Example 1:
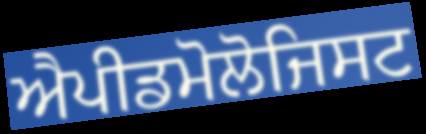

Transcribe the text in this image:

ਐਪੀਡਮੋਲੋਜਿਸਟ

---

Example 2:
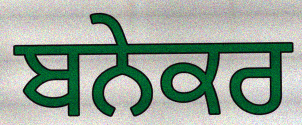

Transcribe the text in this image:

ਬਨੇਕਰ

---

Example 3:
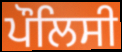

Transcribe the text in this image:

ਪੌਲਿਸੀ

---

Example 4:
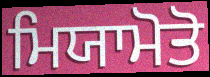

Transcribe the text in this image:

ਮਿਯਾਮੋਤੋ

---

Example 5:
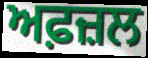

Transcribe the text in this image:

ਅਫ਼ਜ਼ਲ